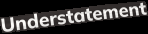
Understatement